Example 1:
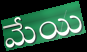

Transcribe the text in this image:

మేయి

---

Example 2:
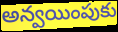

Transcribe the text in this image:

అన్వయింపుకు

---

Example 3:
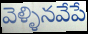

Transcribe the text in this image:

వెళ్ళినవేపే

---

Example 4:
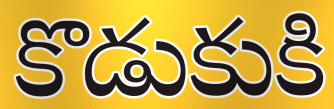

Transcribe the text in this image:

కొడుకుకి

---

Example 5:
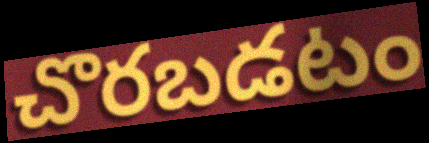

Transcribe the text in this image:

చొరబడటం